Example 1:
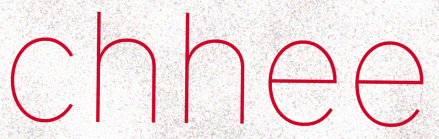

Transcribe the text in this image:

chhee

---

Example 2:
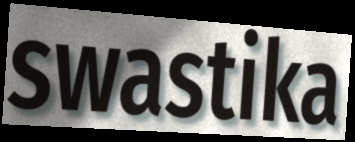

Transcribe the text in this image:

swastika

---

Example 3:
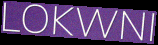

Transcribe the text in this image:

LOKWNI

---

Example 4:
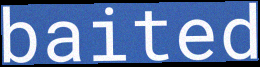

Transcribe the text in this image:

baited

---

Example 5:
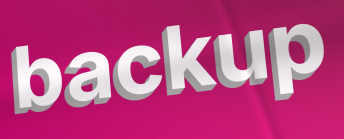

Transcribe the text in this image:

backup